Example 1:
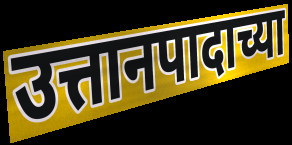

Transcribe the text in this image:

उत्तानपादाच्या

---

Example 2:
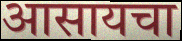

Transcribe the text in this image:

आसायचा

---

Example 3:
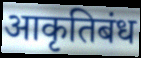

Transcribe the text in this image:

आकृतिबंध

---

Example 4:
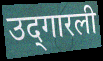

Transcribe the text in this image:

उद्‌गारली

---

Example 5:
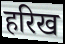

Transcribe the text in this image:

हरिख